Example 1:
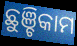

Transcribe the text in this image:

ଛୁଞ୍ଚିକାମ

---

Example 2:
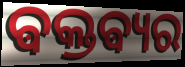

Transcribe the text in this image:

ଵକ୍ତଵ୍ୟର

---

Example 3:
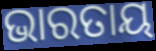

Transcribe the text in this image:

ଭାରତାୟ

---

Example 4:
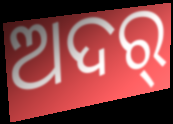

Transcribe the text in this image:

ଅଦର୍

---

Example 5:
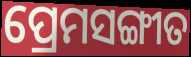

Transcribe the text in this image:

ପ୍ରେମସଙ୍ଗୀତ